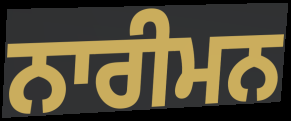
ਨਾਰੀਮਨ